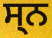
ਸ੍ਨ